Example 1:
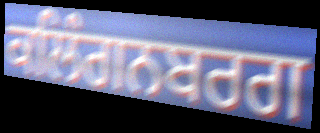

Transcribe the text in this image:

ਕਲਿੰਗਨਬਰਗ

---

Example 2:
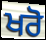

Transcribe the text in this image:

ਖਰੋ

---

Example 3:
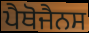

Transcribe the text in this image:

ਪੈਥੋਜੈਨਸ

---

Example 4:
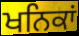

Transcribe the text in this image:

ਖਨਿਕਾਂ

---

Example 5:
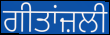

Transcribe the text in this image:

ਗੀਤਾਂਜ਼ਲੀ